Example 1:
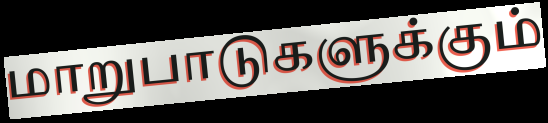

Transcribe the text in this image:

மாறுபாடுகளுக்கும்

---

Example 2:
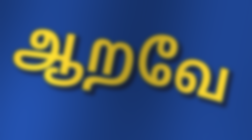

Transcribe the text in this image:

ஆறவே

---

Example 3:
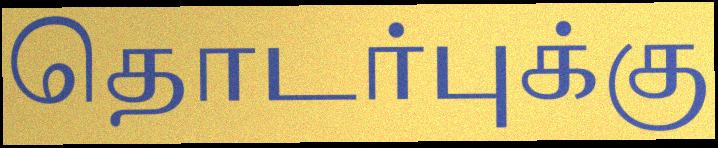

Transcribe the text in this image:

தொடர்புக்கு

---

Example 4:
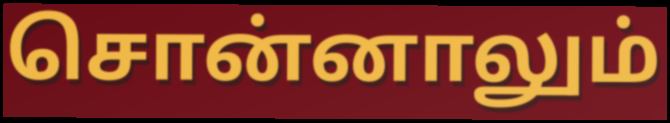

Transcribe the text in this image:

சொன்னாலும்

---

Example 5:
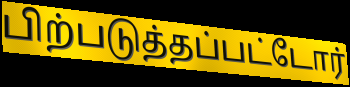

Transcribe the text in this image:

பிற்படுத்தப்பட்டோர்